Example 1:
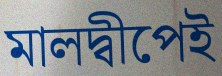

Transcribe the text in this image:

মালদ্বীপেই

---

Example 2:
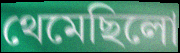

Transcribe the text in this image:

থেমেছিলো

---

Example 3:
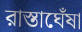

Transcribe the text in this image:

রাস্তাঘেঁষা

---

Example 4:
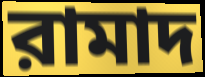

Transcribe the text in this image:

রামাদ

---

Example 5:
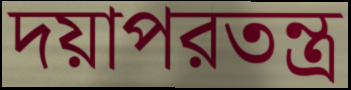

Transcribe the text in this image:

দয়াপরতন্ত্র